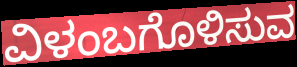
ವಿಳಂಬಗೊಳಿಸುವ